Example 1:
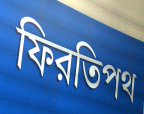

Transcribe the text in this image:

ফিরতিপথ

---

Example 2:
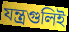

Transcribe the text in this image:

যন্ত্রগুলিই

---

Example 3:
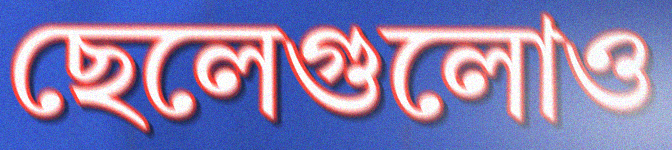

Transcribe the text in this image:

ছেলেগুলোও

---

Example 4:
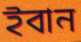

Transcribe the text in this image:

ইবান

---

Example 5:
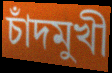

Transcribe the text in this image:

চাঁদমুখী